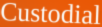
Custodial